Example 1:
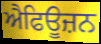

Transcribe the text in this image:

ਐਫਿਊਜ਼ਨ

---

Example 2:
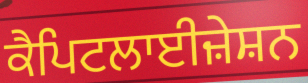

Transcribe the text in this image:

ਕੈਪਿਟਲਾਈਜ਼ੇਸ਼ਨ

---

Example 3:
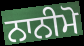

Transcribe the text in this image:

ਨਾਨੀਮੋ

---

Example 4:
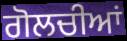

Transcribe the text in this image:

ਗੋਲਚੀਆਂ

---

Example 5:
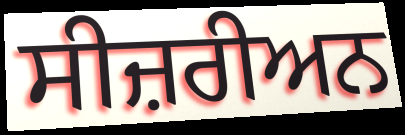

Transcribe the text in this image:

ਸੀਜ਼ਰੀਅਨ